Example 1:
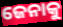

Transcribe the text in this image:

ଜେନାକୁ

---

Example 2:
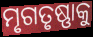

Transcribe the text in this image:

ମୃଗତୃଷ୍ଣାକୁ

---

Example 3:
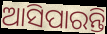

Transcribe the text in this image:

ଆସିପାରନ୍ତି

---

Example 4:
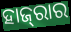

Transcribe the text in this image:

ହାଜ୍‌ରାର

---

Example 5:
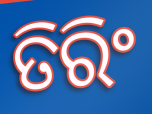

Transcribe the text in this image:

ତିରିଂ